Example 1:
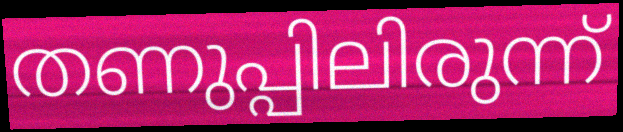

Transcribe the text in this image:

തണുപ്പിലിരുന്ന്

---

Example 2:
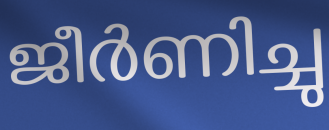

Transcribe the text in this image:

ജീർണിച്ചു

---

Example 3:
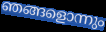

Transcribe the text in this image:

ഞങ്ങളൊന്നും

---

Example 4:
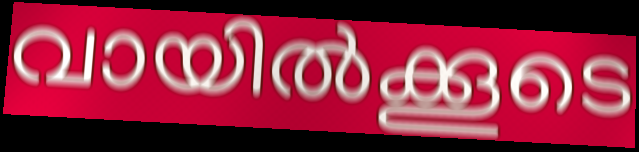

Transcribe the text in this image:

വായിൽക്കൂടെ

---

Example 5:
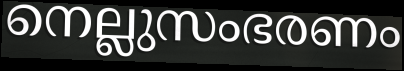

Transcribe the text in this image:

നെല്ലുസംഭരണം